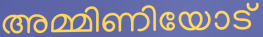
അമ്മിണിയോട്